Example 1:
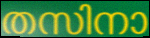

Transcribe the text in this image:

തസിനാ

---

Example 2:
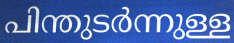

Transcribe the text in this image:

പിന്തുടർന്നുള്ള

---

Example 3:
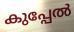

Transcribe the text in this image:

കുപ്പേൽ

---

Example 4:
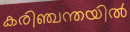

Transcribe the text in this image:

കരിഞ്ചന്തയിൽ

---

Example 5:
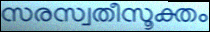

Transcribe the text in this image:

സരസ്വതീസൂക്തം